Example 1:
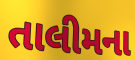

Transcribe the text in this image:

તાલીમના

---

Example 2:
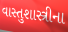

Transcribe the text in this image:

વાસ્તુશાસ્ત્રીના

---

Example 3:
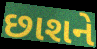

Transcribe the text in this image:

છાશને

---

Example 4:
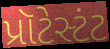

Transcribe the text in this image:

પ્રૉટેસ્ટંટ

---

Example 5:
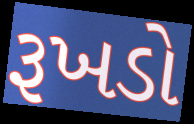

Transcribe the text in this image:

રૂખડો